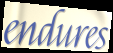
endures